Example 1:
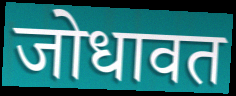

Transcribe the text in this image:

जोधावत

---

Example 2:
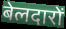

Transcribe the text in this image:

बेलदारों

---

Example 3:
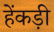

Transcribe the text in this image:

हेंकड़ी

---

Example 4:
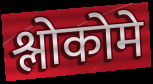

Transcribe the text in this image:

श्लोकोमे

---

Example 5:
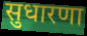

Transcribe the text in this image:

सुधारणा